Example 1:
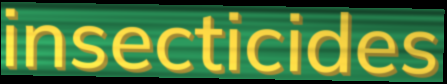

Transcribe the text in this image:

insecticides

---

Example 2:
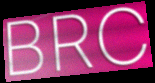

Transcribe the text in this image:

BRC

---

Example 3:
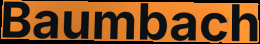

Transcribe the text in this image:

Baumbach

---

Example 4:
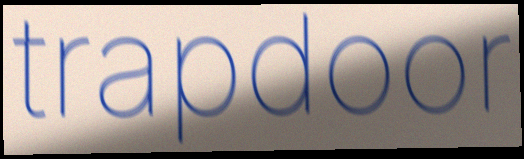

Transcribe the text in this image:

trapdoor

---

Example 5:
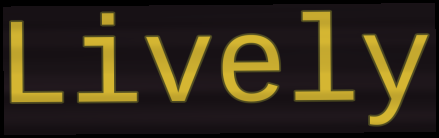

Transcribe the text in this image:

Lively